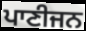
ਪਾਣੀਜਨ